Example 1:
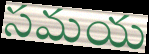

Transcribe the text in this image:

సమయ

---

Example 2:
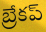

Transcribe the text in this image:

బ్రేకప్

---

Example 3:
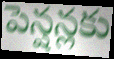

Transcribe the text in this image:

పెన్షన్లకు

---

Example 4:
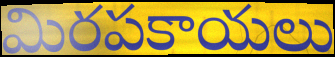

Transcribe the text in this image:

మిరపకాయలు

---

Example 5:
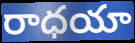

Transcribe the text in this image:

రాధయా